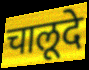
चालूदे